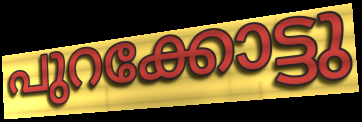
പുറക്കോട്ടു